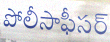
పోలీసాఫీసర్